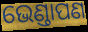
ଭେଣ୍ଡାପଣ